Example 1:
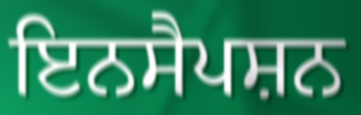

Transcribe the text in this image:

ਇਨਸੈਪਸ਼ਨ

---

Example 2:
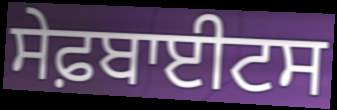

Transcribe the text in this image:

ਸੇਫ਼ਬਾਈਟਸ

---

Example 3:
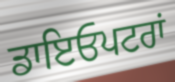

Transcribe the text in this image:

ਡਾਇਓਪਟਰਾਂ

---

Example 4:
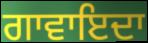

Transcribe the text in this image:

ਗਾਵਾਇਦਾ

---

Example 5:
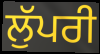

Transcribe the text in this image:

ਲੁੱਪਰੀ